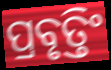
ପ୍ରବୃତ୍ତିଂ